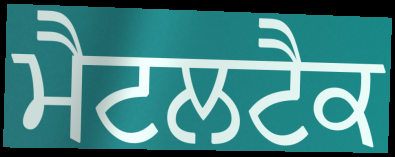
ਮੈਟਲਟੈਕ